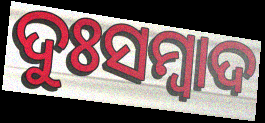
ଦୁଃସମ୍ବାଦ